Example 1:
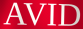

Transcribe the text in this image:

AVID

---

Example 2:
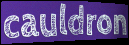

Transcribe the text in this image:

cauldron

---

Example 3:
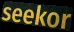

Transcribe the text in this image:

seekor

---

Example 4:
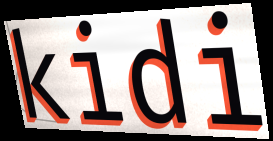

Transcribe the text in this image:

kidi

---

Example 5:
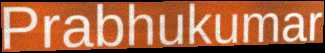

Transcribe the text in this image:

Prabhukumar